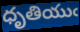
ధృతియుఁ